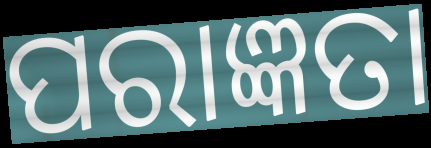
ପରାଜ୍ଞତା